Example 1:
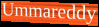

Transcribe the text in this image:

Ummareddy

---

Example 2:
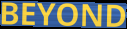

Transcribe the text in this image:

BEYOND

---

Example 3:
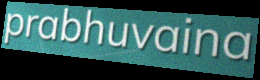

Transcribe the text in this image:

prabhuvaina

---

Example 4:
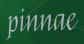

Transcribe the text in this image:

pinnae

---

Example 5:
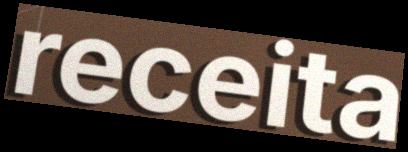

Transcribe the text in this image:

receita